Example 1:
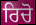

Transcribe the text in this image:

ਰਿਚੋ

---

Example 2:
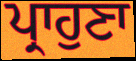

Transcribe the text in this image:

ਪ੍ਰਾਹੁਣਾ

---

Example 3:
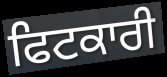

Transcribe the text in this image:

ਫਿਟਕਾਰੀ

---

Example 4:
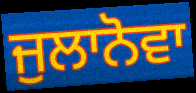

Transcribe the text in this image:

ਜੁਲਾਨੋਵਾ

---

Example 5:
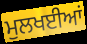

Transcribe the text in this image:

ਮੁਲਖਈਆਂ